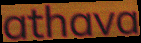
athava